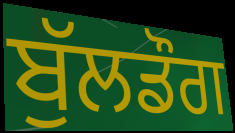
ਬੁੱਲਡੌਗ